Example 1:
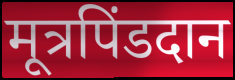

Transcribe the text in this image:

मूत्रपिंडदान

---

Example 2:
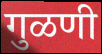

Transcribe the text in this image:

गुळणी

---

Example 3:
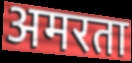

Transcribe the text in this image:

अमरता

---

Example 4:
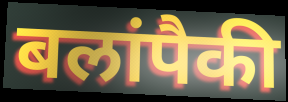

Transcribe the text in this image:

बलांपैकी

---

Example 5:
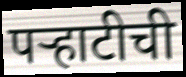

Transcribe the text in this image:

पऱ्हाटीची